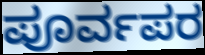
ಪೂರ್ವಪರ